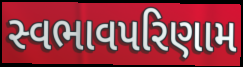
સ્વભાવપરિણામ